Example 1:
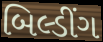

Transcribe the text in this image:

બિલ્ડીંગ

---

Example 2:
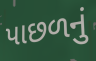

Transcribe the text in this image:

પાછળનું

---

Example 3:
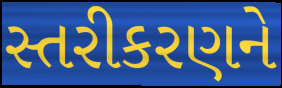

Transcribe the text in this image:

સ્તરીકરણને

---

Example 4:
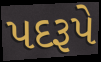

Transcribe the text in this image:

પદરૂપે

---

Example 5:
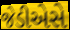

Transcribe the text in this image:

જેડીએસે